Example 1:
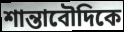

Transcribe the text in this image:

শান্তাবৌদিকে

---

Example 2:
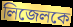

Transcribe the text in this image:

লিজেলকে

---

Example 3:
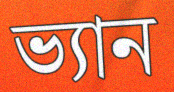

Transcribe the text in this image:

ভ্যান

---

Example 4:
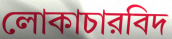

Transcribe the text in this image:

লোকাচারবিদ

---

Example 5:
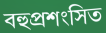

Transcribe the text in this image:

বহুপ্রশংসিত